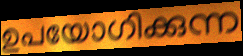
ഉപയോഗിക്കുന്ന